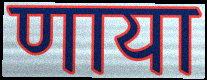
णाया